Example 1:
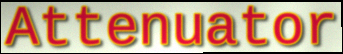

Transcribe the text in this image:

Attenuator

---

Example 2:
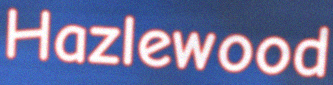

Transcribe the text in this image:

Hazlewood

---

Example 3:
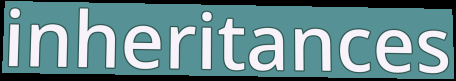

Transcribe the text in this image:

inheritances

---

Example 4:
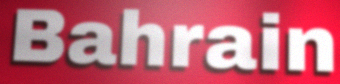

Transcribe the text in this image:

Bahrain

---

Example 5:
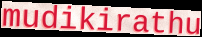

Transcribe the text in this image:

mudikirathu